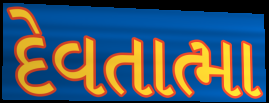
દેવતાત્મા